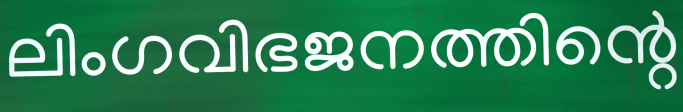
ലിംഗവിഭജനത്തിന്റെ